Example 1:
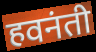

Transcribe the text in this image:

हवनंती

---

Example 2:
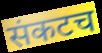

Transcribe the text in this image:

संकटच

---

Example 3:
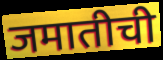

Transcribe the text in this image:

जमातीची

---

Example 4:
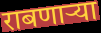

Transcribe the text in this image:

राबणार्‍या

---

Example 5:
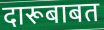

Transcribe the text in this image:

दारूबाबत